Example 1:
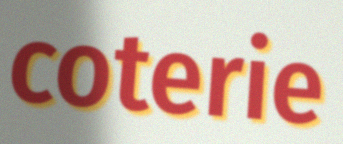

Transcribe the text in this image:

coterie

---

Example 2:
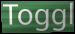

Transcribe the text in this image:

Toggl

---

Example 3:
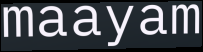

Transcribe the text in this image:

maayam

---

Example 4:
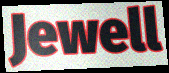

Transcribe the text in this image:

Jewell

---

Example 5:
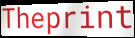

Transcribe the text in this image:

Theprint